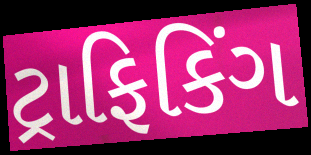
ટ્રાફિકિંગ